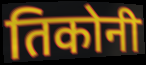
तिकोनी